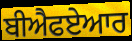
ਬੀਐਫਏਆਰ